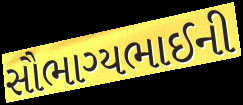
સૌભાગ્યભાઈની